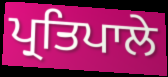
ਪ੍ਰਤਿਪਾਲੇ